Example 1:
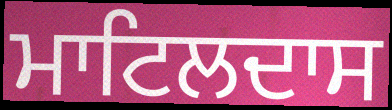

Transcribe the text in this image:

ਮਾਟਿਲਦਾਸ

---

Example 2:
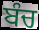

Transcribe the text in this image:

ਬੰਚ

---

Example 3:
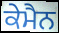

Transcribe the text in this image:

ਕੇਮੈਨ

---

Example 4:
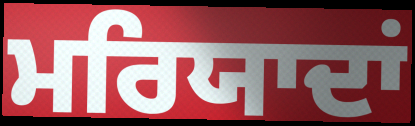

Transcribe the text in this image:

ਮਰਿਯਾਦਾਂ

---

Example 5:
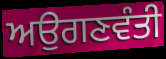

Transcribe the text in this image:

ਅਉਗਣਵੰਤੀ